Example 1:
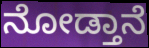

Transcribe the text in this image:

ನೋಡ್ತಾನೆ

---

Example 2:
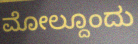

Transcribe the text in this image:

ಮೋಲ್ದೂಂದು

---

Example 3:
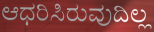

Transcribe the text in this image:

ಆಧರಿಸಿರುವುದಿಲ್ಲ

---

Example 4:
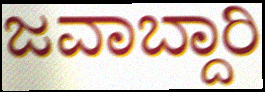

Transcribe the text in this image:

ಜವಾಬ್ದಾರಿ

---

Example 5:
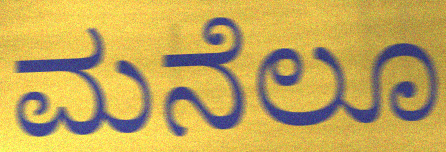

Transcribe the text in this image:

ಮನೆಲೂ